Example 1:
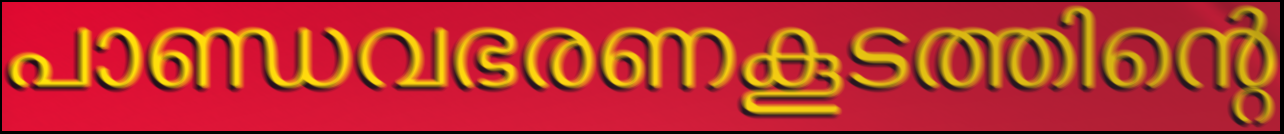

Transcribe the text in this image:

പാണ്ഡവഭരണകൂടത്തിന്റെ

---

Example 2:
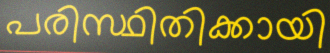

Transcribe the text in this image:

പരിസ്ഥിതിക്കായി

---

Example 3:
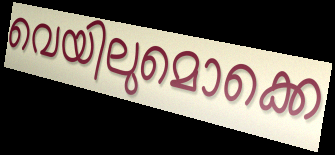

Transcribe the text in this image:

വെയിലുമൊക്കെ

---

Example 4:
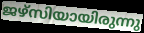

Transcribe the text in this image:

ജഴ്സിയായിരുന്നു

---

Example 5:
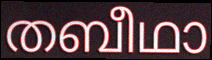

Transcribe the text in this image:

തബീഥാ